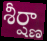
శీర్ష్ణా